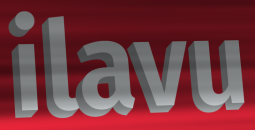
ilavu